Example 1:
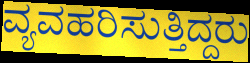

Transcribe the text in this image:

ವ್ಯವಹರಿಸುತ್ತಿದ್ದರು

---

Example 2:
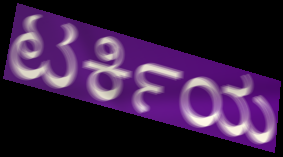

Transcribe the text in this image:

ಟರ್ಕಿಯ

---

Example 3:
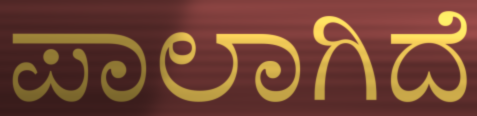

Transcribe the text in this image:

ಪಾಲಾಗಿದೆ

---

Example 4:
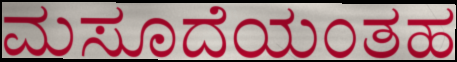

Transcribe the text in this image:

ಮಸೂದೆಯಂತಹ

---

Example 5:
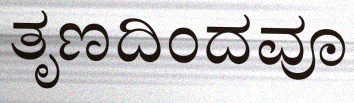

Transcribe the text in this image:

ತೃಣದಿಂದವೂ